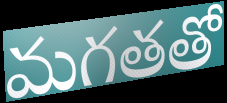
మగతతో